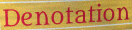
Denotation